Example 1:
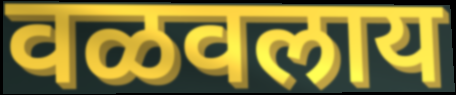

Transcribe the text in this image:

वळवलाय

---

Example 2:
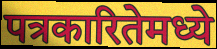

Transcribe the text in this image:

पत्रकारितेमध्ये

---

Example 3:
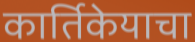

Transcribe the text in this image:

कार्तिकेयाचा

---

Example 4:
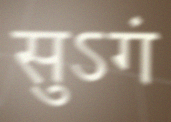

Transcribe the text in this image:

सुऽगं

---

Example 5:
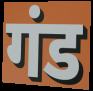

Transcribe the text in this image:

गंड